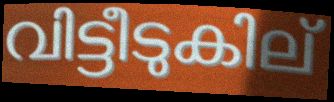
വിട്ടീടുകില്